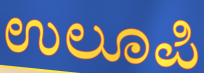
ಉಲೂಪಿ